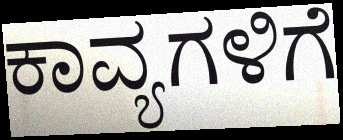
ಕಾವ್ಯಗಳಿಗೆ